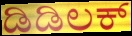
ಡಿಡಿಲಕ್